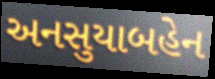
અનસુયાબહેન